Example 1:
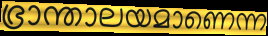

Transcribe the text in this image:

ഭ്രാന്താലയമാണെന്ന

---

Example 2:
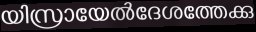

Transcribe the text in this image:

യിസ്രായേൽദേശത്തേക്കു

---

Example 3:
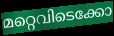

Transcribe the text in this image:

മറ്റെവിടെക്കോ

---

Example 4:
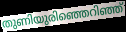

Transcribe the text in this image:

തുണിയുരിഞ്ഞെറിഞ്ഞ്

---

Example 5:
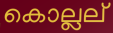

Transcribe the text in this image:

കൊല്ലല്